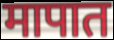
मापात